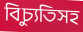
বিচ্যুতিসহ